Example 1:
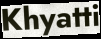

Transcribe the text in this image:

Khyatti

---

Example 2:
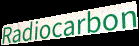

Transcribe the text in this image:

Radiocarbon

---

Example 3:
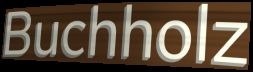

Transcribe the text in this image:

Buchholz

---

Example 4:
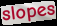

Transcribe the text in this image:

slopes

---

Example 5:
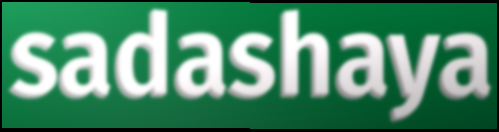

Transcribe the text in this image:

sadashaya